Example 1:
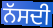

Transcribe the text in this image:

ਨੱਸਦੀ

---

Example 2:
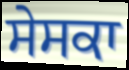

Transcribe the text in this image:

ਸੇਸਕਾ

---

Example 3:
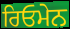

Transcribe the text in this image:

ਰਿਓਮੇਨ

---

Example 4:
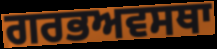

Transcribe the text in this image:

ਗਰਭਅਵਸਥਾ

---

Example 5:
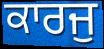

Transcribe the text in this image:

ਕਾਰਜੁ